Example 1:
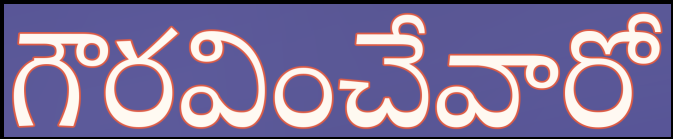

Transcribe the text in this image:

గౌరవించేవారో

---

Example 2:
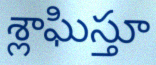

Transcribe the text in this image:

శ్లాఘిస్తూ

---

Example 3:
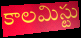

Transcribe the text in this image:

కాలమిస్టు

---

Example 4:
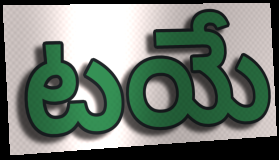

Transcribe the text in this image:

టయే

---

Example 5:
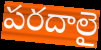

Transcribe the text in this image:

పరదాలై